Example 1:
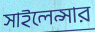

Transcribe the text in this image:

সাইলেন্সার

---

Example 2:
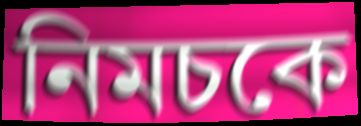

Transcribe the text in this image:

নিমচকে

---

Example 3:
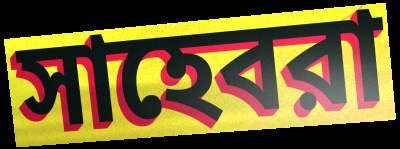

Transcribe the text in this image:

সাহেবরা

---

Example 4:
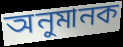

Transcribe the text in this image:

অনুমানক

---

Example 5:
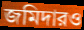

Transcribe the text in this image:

জমিদারও